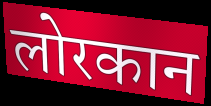
लोरकान